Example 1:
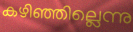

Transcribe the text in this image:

കഴിഞ്ഞില്ലെന്നു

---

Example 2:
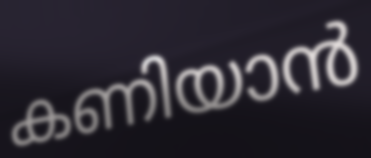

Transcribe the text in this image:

കണിയാൻ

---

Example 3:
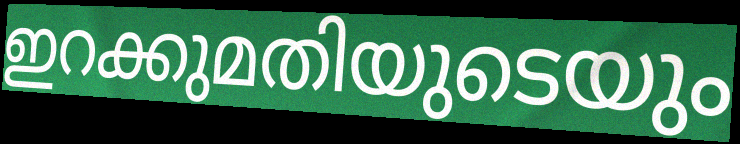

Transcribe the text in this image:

ഇറക്കുമതിയുടെയും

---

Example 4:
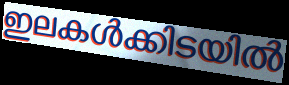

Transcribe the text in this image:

ഇലകൾക്കിടയിൽ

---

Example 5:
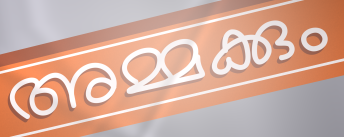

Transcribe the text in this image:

അമ്മക്കും